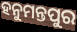
ହନୁମନ୍ତପୁର